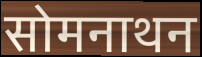
सोमनाथन